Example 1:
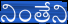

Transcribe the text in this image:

నింతేని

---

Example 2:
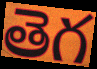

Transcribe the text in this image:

తెగ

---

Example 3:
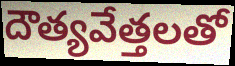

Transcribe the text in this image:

దౌత్యవేత్తలతో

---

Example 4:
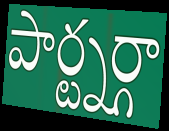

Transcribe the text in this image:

పార్ట్నర్గా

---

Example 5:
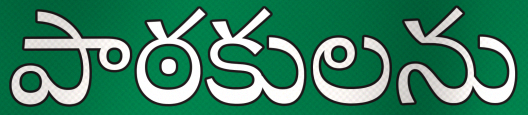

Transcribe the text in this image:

పాఠకులను